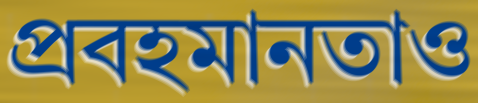
প্রবহমানতাও